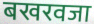
बखरवजा